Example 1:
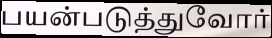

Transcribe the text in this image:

பயன்படுத்துவோர்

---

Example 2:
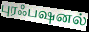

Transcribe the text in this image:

புரஃபஷனல்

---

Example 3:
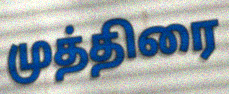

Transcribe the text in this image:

முத்திரை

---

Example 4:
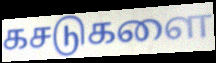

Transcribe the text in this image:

கசடுகளை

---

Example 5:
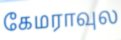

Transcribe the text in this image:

கேமராவுல